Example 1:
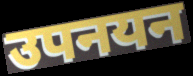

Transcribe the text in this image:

उपनयन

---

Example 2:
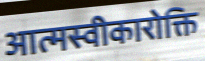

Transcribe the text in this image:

आत्मस्वीकारोक्ति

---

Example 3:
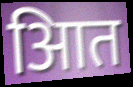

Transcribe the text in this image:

आित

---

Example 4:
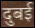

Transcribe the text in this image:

दुबई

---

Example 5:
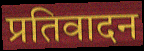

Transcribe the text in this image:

प्रतिवादन